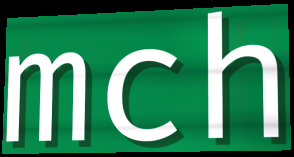
mch